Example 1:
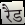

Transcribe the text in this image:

रैड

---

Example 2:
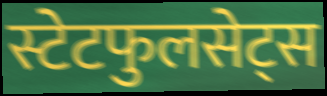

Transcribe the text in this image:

स्टेटफुलसेट्स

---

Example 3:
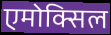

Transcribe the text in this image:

एमोक्सिल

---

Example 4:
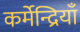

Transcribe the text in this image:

कर्मेन्द्रियाँ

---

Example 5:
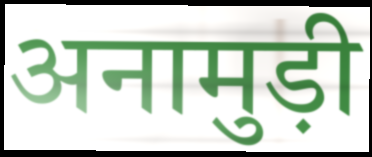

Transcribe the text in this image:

अनामुड़ी